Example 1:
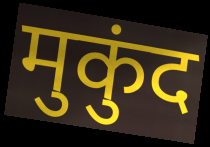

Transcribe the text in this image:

मुकुंद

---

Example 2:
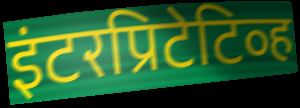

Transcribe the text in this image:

इंटरप्रिटेटिव्ह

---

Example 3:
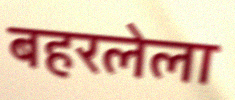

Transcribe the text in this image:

बहरलेला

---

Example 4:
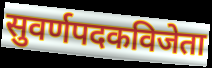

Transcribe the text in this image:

सुवर्णपदकविजेता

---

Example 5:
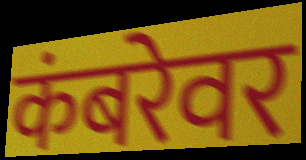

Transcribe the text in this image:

कंबरेवर